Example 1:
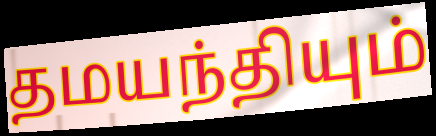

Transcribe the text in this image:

தமயந்தியும்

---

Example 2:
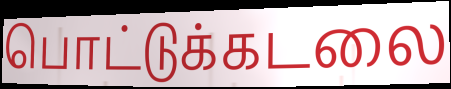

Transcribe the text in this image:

பொட்டுக்கடலை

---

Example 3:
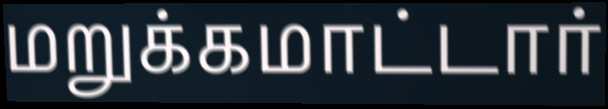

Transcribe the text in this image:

மறுக்கமாட்டார்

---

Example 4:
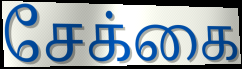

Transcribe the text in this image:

சேக்கை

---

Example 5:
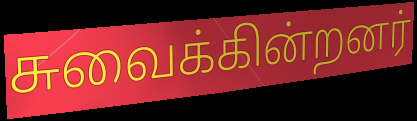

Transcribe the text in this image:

சுவைக்கின்றனர்